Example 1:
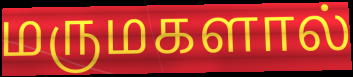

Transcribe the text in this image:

மருமகளால்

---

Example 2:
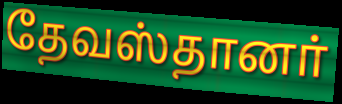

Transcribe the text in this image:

தேவஸ்தானர்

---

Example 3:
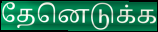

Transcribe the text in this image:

தேனெடுக்க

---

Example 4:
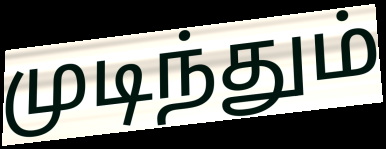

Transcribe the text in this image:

முடிந்தும்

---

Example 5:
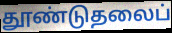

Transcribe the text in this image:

தூண்டுதலைப்